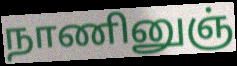
நாணினுஞ்